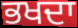
ਭਖਦਾ